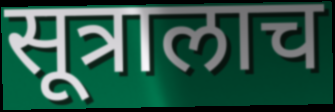
सूत्रालाच